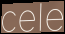
cele